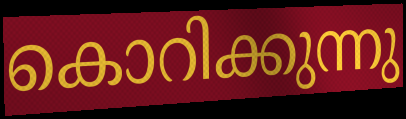
കൊറിക്കുന്നു